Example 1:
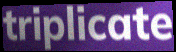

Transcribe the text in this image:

triplicate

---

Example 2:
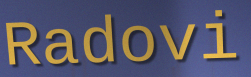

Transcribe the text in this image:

Radovi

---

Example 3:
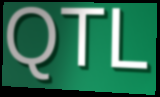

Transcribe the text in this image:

QTL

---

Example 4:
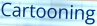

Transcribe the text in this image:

Cartooning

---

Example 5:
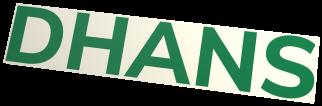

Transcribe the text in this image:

DHANS